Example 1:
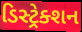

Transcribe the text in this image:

ડિસ્ટ્રેક્શન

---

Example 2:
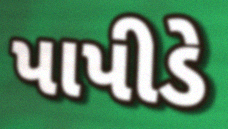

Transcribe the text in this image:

પાપીડે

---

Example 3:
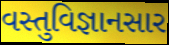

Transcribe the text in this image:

વસ્તુવિજ્ઞાનસાર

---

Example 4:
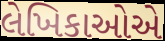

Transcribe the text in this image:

લેખિકાઓએ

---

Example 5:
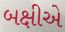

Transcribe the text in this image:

બક્ષીએ